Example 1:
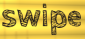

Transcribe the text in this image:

swipe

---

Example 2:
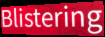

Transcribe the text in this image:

Blistering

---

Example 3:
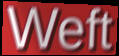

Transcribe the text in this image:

Weft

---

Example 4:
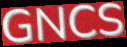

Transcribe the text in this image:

GNCS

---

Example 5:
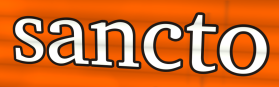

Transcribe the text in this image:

sancto